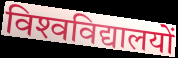
विश्‍वविद्यालयों